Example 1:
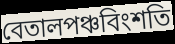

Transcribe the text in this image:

বেতালপঞ্চবিংশতি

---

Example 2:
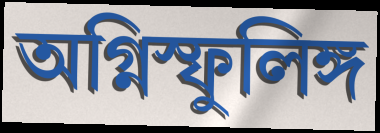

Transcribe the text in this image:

অগ্নিস্ফুলিঙ্গ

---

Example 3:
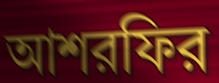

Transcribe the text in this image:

আশরফির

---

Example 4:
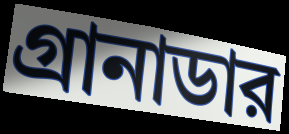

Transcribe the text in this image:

গ্রানাডার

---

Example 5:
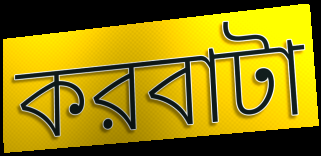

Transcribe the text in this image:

করবাটা